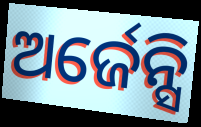
ଅର୍ଜେନ୍ସି